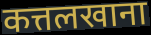
कत्तलखाना